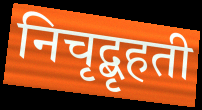
निचृद्बृहती